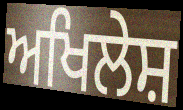
ਅਖਿਲੇਸ਼